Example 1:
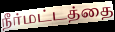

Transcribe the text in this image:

நீர்மட்டத்தை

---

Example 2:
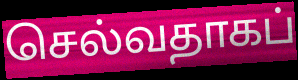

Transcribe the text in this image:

செல்வதாகப்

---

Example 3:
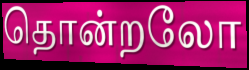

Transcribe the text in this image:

தொன்றலோ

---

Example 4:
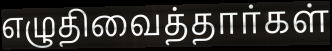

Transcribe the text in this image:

எழுதிவைத்தார்கள்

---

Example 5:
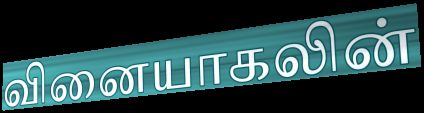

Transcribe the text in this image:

வினையாகலின்